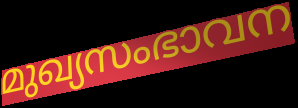
മുഖ്യസംഭാവന